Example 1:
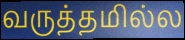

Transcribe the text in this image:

வருத்தமில்ல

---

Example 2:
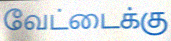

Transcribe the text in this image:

வேட்டைக்கு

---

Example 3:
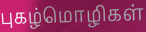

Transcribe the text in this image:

புகழ்மொழிகள்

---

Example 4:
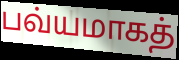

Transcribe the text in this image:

பவ்யமாகத்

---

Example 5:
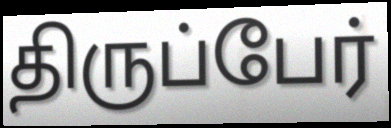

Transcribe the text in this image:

திருப்பேர்